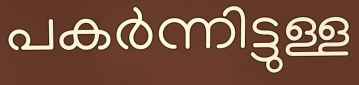
പകർന്നിട്ടുള്ള